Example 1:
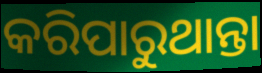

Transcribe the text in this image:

କରିପାରୁଥାନ୍ତା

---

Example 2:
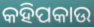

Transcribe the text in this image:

କହିପକାଉ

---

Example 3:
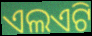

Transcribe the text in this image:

ଏଲଏଟି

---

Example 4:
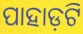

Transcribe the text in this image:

ପାହାଡ଼ଟି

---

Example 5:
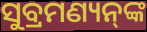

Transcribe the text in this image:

ସୁବ୍ରମଣ୍ୟନ୍‌ଙ୍କ